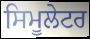
ਸਿਮੂਲੇਟਰ